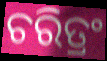
ଚରିତ୍ରଂ